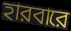
হারবারে